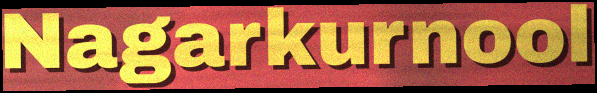
Nagarkurnool